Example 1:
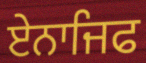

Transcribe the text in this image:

ਏਨਾਜਿਫ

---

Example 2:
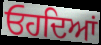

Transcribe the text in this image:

ਓਹਦਿਆਂ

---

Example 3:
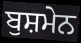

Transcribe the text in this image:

ਬੁਸ਼ਮੇਨ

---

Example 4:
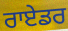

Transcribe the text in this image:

ਰਾਏਡਰ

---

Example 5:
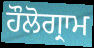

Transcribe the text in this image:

ਹੌਲੋਗ੍ਰਾਮ